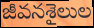
జీవనశైలుల